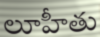
లూహీతు